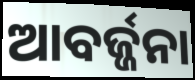
ଆବର୍ଜ୍ଜନା